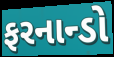
ફરનાન્ડો